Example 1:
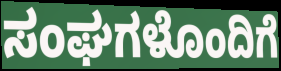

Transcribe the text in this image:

ಸಂಘಗಳೊಂದಿಗೆ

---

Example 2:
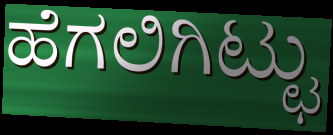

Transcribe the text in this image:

ಹೆಗಲಿಗಿಟ್ಟು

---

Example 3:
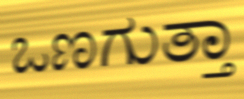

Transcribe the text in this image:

ಒಣಗುತ್ತಾ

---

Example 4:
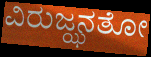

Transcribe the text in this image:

ವಿರುಜ್ಝನತೋ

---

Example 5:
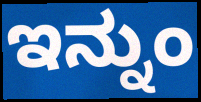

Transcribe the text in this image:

ಇನ್ನುಂ